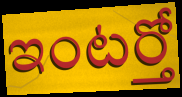
ఇంటర్తో